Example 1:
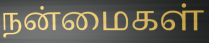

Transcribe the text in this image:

நன்மைகள்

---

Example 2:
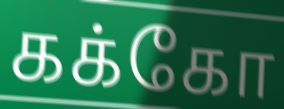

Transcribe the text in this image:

கக்கோ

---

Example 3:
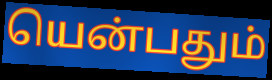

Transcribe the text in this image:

யென்பதும்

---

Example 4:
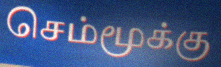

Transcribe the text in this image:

செம்மூக்கு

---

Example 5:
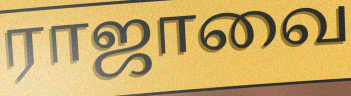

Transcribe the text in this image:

ராஜாவை